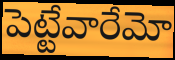
పెట్టేవారేమో